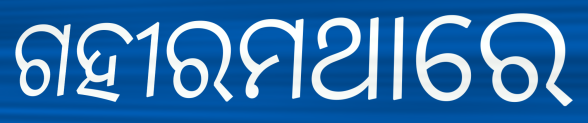
ଗହୀରମଥାରେ